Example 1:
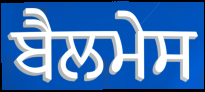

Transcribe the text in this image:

ਬੈਲਮੇਸ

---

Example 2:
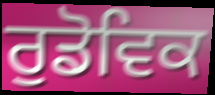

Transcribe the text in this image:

ਰੁਡੋਵਿਕ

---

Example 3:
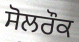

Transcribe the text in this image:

ਸੋਲਰੌਕ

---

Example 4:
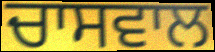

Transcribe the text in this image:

ਚਾਸਵਾਲ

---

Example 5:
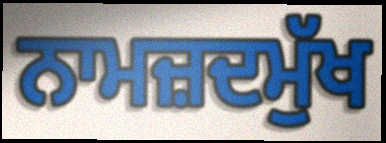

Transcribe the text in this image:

ਨਾਮਜ਼ਦਮੁੱਖ